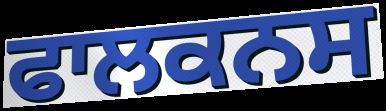
ਫਾਲਕਨਸ